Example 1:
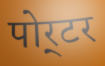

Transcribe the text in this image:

पोर्टर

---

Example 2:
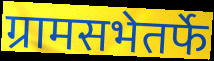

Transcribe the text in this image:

ग्रामसभेतर्फे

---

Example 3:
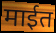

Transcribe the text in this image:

माईत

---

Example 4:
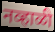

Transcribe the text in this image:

नव्हाळी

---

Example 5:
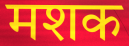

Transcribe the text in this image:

मशक